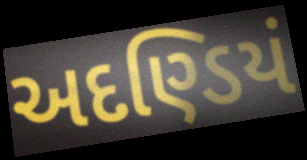
અદણ્ડિયં